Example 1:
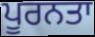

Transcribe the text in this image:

ਪੂਰਨਤਾ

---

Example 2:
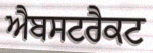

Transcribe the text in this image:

ਐਬਸਟਰੈਕਟ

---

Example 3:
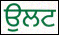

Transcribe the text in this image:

ਉਲਟ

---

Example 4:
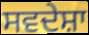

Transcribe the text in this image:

ਸਵਦੇਸ਼ਾ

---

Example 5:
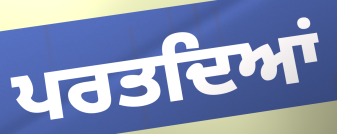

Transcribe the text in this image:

ਪਰਤਦਿਆਂ